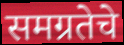
समग्रतेचे